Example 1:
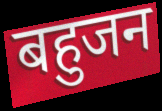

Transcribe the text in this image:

बहुजन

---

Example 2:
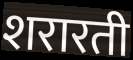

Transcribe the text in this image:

शरारती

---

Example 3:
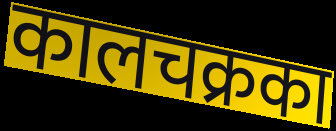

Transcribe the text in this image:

कालचक्रका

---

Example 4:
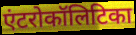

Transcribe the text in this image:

एंटरोकॉलिटिका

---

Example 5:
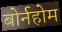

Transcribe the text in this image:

बोर्नहोम